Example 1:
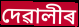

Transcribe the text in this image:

দেৱালীৰ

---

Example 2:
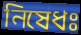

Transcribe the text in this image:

নিষেধঃ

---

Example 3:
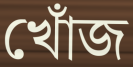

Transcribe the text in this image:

খোঁজ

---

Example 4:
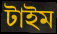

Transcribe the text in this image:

টাইম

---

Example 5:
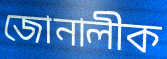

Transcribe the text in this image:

জোনালীক